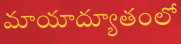
మాయాద్యూతంలో